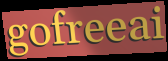
gofreeai